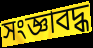
সংজ্ঞাবদ্ধ